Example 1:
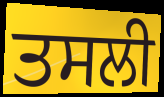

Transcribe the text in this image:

ਤਸਲੀ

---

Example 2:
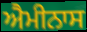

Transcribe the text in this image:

ਐਮੀਨਾਸ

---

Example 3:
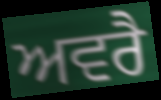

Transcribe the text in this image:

ਅਵਰੈ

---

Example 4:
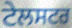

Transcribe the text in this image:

ਟੇਲਸਟਰ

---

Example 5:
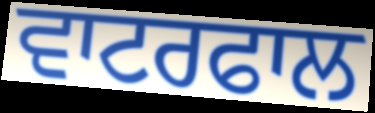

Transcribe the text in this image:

ਵਾਟਰਫਾਲ